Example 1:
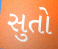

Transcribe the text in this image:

સુતો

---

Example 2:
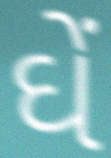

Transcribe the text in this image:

ઘેં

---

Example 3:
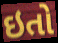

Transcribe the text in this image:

ઇતો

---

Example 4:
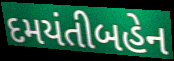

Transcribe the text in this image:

દમયંતીબહેન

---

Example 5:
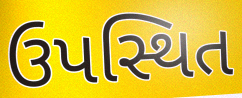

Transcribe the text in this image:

ઉપસ્થિત